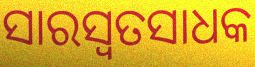
ସାରସ୍ଵତସାଧକ